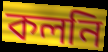
কলনি